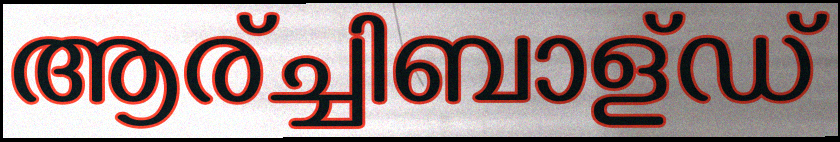
ആര്ച്ചിബാള്ഡ്